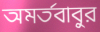
অমর্তবাবুর